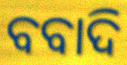
ବବାଦି